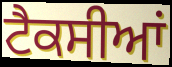
ਟੈਕਸੀਆਂ